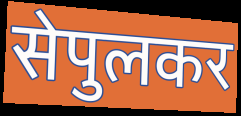
सेपुलकर